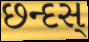
છન્દસ્